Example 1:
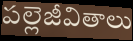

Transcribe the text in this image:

పల్లెజీవితాలు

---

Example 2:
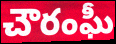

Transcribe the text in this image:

చౌరంఘీ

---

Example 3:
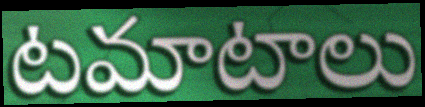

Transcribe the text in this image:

టమాటాలు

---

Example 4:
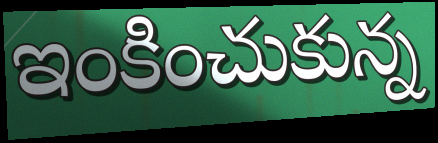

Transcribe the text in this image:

ఇంకించుకున్న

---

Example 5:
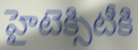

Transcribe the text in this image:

హైటెక్సిటీకి